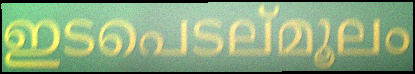
ഇടപെടല്മൂലം